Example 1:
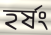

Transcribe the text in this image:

হর্ষং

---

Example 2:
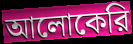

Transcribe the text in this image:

আলোকেরি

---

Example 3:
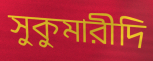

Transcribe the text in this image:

সুকুমারীদি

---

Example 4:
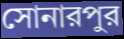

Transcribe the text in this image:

সোনারপুর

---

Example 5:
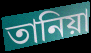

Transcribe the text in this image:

তানিয়া